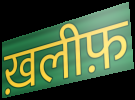
ख़लीफ़